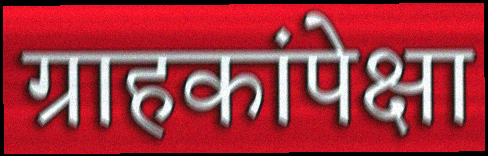
ग्राहकांपेक्षा